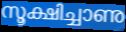
സൂക്ഷിച്ചാണു